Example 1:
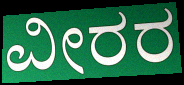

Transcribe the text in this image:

ವೀರರ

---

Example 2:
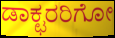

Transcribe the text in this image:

ಡಾಕ್ಟರರಿಗೋ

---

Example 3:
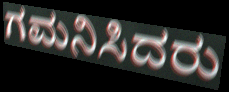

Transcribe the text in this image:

ಗಮನಿಸಿದರು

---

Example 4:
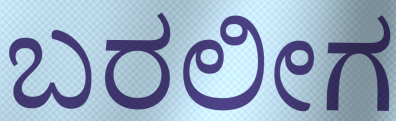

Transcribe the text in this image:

ಬರಲೀಗ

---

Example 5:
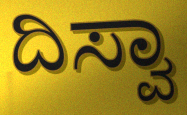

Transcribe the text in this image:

ದಿಸ್ವಾ